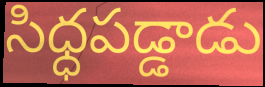
సిధ్ధపడ్డాడు